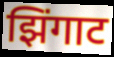
झिंगाट